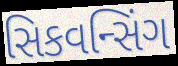
સિકવન્સિંગ